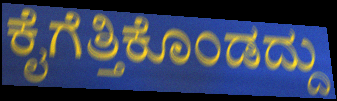
ಕೈಗೆತ್ತಿಕೊಂಡದ್ದು